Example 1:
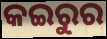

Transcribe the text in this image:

କଇରୁର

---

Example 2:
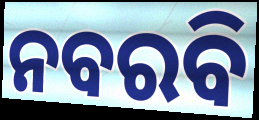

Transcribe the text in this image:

ନବରବି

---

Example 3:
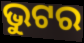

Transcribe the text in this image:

ଭୁଟର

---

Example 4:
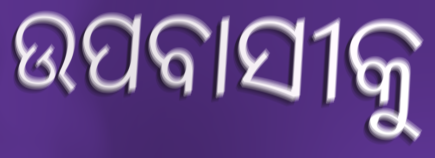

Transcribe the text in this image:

ଉପବାସୀକୁ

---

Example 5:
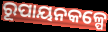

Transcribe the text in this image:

ରୂପାୟନକଳ୍ପେ